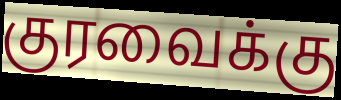
குரவைக்கு